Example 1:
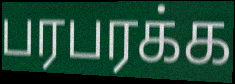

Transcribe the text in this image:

பரபரக்க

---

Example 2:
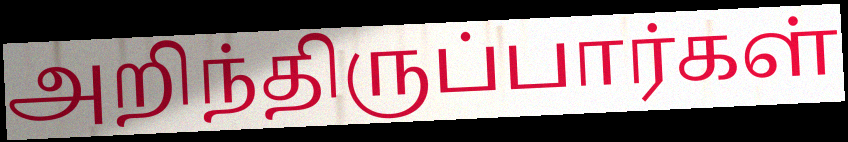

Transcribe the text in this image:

அறிந்திருப்பார்கள்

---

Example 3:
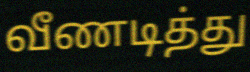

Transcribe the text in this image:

வீணடித்து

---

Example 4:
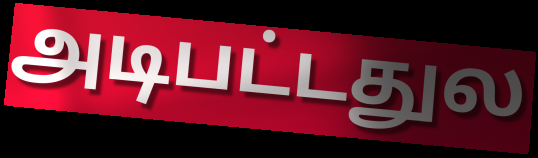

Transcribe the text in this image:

அடிபட்டதுல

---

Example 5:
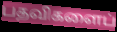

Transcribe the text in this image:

பதவிகளைப்